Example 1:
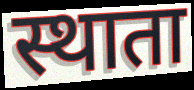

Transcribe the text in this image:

स्थाता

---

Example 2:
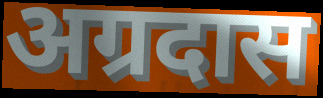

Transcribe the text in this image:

अग्रदास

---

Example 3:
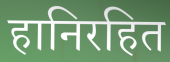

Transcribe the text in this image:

हानिरहित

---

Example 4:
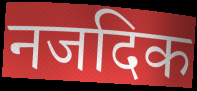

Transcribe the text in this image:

नजदिक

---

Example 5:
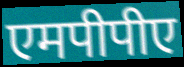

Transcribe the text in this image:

एमपीपीए